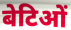
बेटिओं